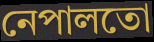
নেপালতো